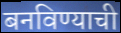
बनविण्याची